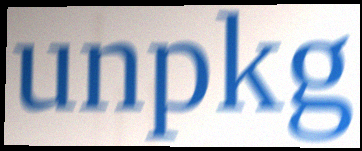
unpkg